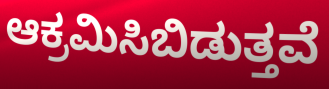
ಆಕ್ರಮಿಸಿಬಿಡುತ್ತವೆ